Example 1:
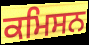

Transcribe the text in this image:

ਕਮਿਸਨ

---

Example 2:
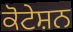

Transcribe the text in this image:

ਕੋਟੇਸ਼ਨ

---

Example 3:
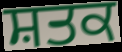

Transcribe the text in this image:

ਸ਼ਤਕ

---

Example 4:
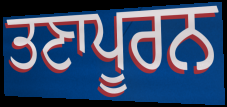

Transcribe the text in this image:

ਤਣਾਪੂਰਨ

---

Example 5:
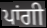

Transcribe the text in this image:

ਪਾਂਗੀ